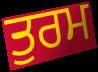
ਤੁਰਮ